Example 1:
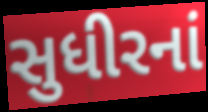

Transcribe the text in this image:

સુધીરનાં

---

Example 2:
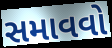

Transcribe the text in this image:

સમાવવો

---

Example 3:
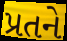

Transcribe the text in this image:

પ્રતને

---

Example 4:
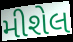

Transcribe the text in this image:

મીશેલ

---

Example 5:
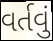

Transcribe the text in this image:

વર્તવું